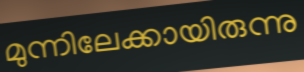
മുന്നിലേക്കായിരുന്നു